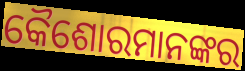
କୈଶୋରମାନଙ୍କର